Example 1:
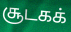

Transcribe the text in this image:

சூடகக்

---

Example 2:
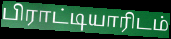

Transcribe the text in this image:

பிராட்டியாரிடம்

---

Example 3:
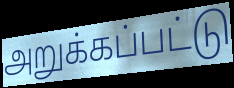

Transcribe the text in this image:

அறுக்கப்பட்டு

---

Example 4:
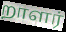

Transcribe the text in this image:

றாளர்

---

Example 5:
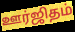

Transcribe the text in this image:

ஊர்ஜிதம்